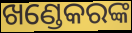
ଖଣ୍ଡେକରଙ୍କ